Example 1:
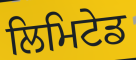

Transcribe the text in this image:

ਲਿਮਿਟੇਡ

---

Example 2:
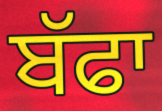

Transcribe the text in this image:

ਬੱਫਾ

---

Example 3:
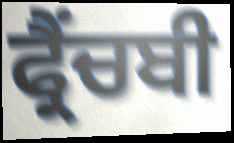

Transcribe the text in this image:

ਫ੍ਰੈਂਚਬੀ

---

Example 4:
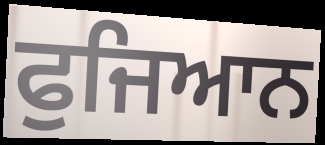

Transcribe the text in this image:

ਫੁਜਿਆਨ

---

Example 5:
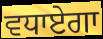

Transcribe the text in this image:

ਵਧਾਏਗਾ